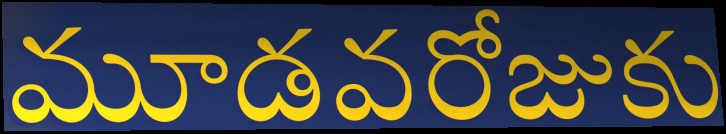
మూడవరోజుకు